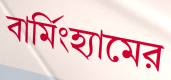
বার্মিংহ্যামের